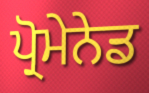
ਪ੍ਰੋਮੇਨੇਡ